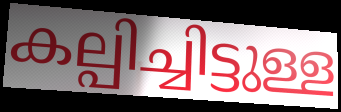
കല്പിച്ചിട്ടുള്ള